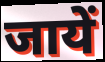
जायें